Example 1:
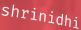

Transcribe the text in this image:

shrinidhi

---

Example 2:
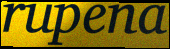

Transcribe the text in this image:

rupena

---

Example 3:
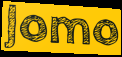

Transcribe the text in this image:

Jomo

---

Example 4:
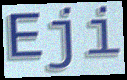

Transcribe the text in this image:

Eji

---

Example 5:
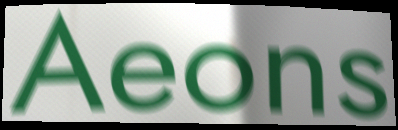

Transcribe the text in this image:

Aeons